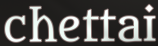
chettai